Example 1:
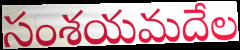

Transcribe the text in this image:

సంశయమదేల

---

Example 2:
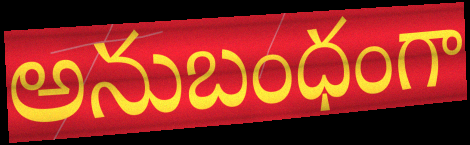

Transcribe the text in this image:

అనుబంధంగా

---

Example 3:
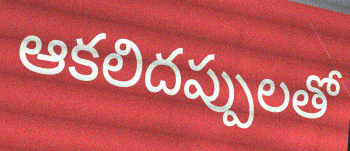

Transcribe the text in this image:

ఆకలిదప్పులతో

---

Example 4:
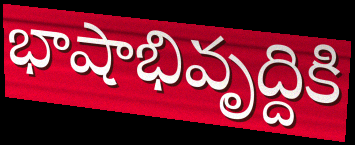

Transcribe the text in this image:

భాషాభివృద్దికి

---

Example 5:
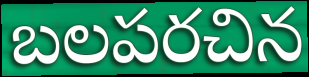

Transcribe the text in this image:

బలపరచిన